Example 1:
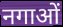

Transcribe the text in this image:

नगाओं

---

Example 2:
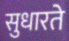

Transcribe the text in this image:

सुधारते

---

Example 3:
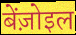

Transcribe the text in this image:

बेंज़ोइल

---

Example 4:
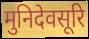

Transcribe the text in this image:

मुनिदेवसूरि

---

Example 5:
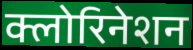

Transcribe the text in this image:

क्लोरिनेशन